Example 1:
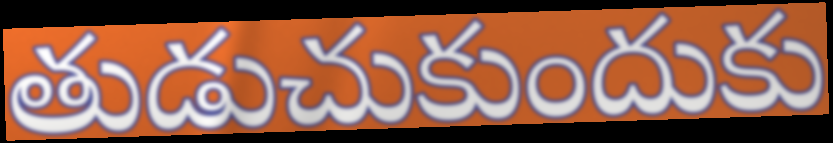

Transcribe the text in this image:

తుడుచుకుందుకు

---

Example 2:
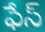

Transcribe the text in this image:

ఫేస్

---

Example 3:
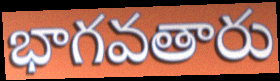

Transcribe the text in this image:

భాగవతారు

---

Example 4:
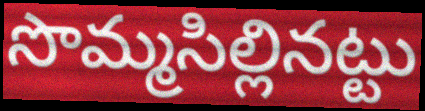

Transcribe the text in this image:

సొమ్మసిల్లినట్టు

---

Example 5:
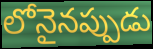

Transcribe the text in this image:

లోనైనప్పుడు